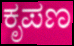
ಕೃಪಣ